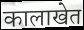
कालाखेत